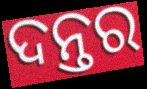
ଦନ୍ତର